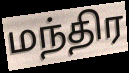
மந்திர